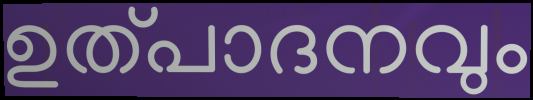
ഉത്പാദനവും